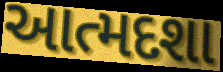
આત્મદશા